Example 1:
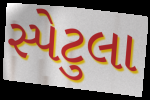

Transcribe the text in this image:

સ્પેટુલા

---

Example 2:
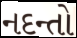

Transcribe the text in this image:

નદન્તો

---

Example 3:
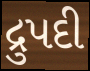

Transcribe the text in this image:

દ્રુપદી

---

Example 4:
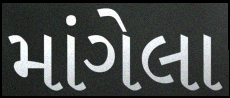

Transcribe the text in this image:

માંગેલા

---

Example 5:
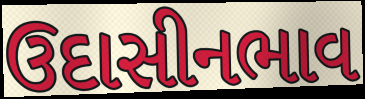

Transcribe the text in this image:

ઉદાસીનભાવ